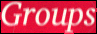
Groups